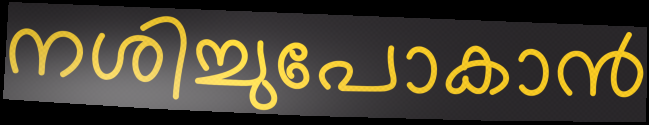
നശിച്ചുപോകാൻ